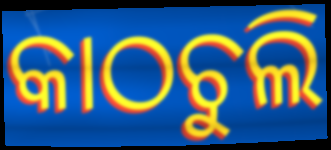
କାଠଚୁଲି